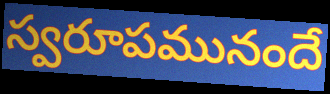
స్వరూపమునందే